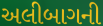
અલીબાગની